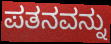
ಪತನವನ್ನು